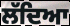
ਲੱਦਿਆ